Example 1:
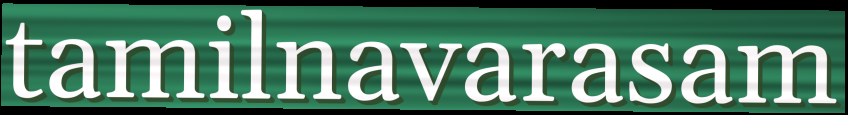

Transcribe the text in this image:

tamilnavarasam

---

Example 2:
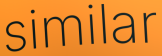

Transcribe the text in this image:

similar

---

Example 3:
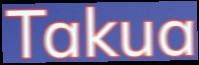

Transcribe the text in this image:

Takua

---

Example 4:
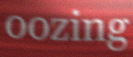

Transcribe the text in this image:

oozing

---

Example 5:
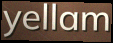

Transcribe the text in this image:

yellam